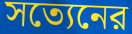
সত্যেনের